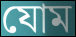
যোম